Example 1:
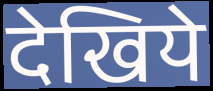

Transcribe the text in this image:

देखिये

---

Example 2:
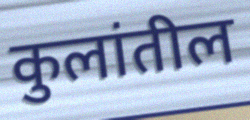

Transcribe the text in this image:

कुलांतील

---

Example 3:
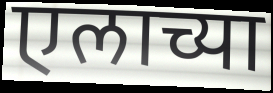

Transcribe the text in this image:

एलाच्या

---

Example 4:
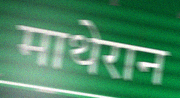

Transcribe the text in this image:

माथेरान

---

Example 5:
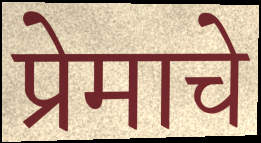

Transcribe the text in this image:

प्रेमाचे